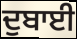
ਦੁਬਾਈ